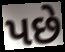
પછે